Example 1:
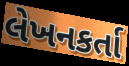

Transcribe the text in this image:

લેખનકર્તા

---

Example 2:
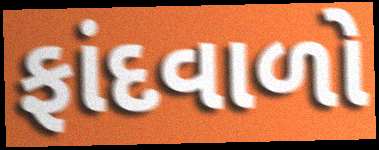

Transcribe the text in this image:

ફાંદવાળો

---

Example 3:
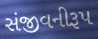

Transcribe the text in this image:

સંજીવનીરૂપ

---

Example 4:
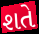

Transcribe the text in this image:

શતે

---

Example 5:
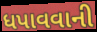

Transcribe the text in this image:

ધપાવવાની